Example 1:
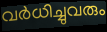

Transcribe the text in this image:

വർധിച്ചുവരും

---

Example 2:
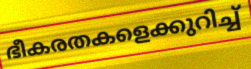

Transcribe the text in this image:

ഭീകരതകളെക്കുറിച്ച്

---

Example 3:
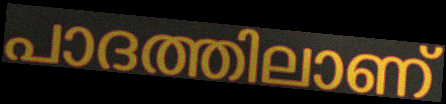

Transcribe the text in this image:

പാദത്തിലാണ്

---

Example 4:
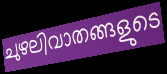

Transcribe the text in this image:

ചുഴലിവാതങ്ങളുടെ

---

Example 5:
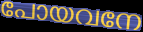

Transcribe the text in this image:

പോയവനേ